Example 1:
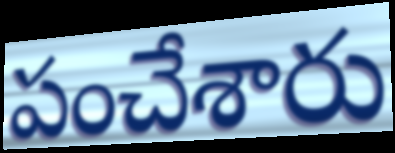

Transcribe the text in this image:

పంచేశారు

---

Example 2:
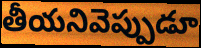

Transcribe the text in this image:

తీయనివెప్పుడూ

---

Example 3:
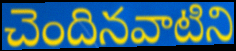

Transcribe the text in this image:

చెందినవాటిని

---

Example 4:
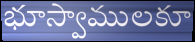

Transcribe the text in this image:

భూస్వాములకూ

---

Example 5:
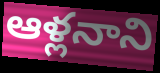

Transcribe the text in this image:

ఆళ్లనాని